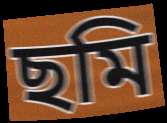
ছমি